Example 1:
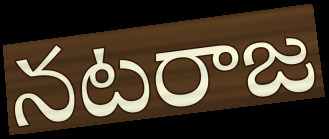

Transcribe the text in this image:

నటరాజ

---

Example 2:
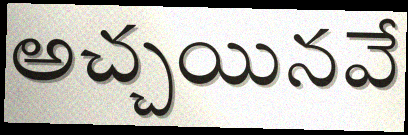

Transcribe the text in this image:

అచ్చయినవే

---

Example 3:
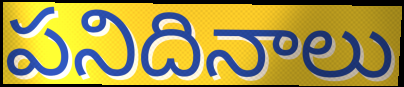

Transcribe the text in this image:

పనిదినాలు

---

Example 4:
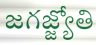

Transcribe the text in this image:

జగజ్జ్యోతి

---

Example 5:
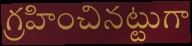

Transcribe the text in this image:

గ్రహించినట్టుగా